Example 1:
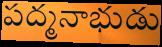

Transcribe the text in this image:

పద్మనాభుడు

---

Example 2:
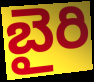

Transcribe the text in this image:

బైరి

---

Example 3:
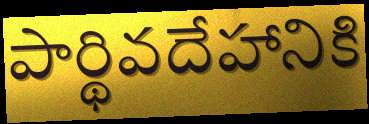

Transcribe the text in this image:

పార్థివదేహానికి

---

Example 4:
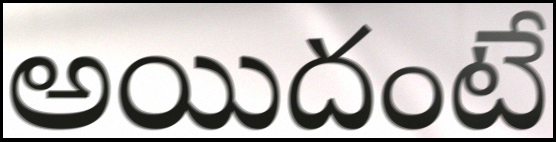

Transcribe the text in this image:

అయిదంటే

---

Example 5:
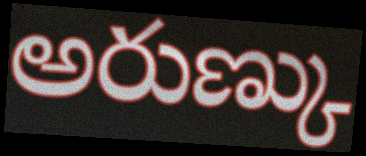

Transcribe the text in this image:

అరుణ్కు